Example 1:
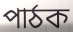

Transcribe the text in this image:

পাঠক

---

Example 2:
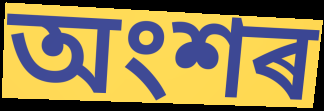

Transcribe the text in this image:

অংশৰ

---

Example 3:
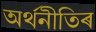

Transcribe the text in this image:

অৰ্থনীতিৰ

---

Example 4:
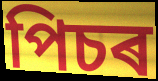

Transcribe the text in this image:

পিচৰ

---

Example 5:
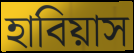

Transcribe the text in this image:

হাবিয়াস